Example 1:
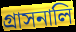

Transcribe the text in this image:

গ্রাসনালি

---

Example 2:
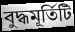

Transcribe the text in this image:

বুদ্ধমূর্তিটি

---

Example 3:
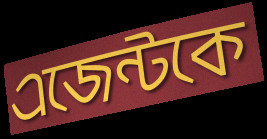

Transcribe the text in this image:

এজেন্টকে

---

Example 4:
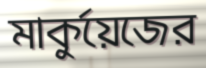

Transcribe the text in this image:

মার্কুয়েজের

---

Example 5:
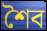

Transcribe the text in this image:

শৈব